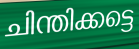
ചിന്തിക്കട്ടെ